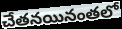
చేతనయినంతలో